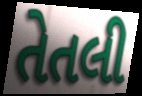
તેતલી